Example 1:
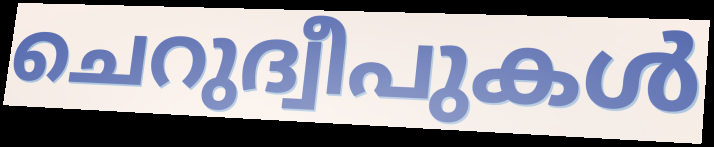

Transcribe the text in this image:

ചെറുദ്വീപുകൾ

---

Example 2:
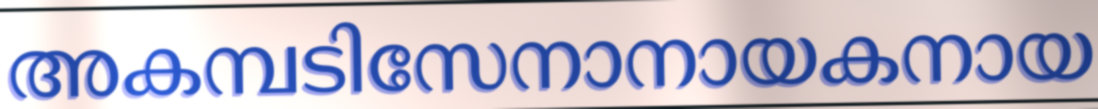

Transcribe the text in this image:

അകമ്പടിസേനാനായകനായ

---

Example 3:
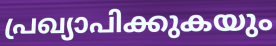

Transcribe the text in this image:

പ്രഖ്യാപിക്കുകയും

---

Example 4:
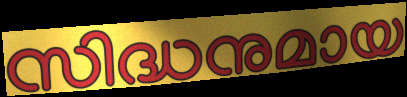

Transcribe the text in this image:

സിദ്ധനുമായ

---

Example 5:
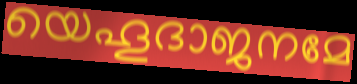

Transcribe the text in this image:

യെഹൂദാജനമേ